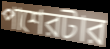
পাশেরটার